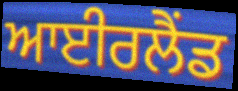
ਆਈਰਲੈਂਡ